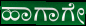
ಹಾಗಾಗೇ